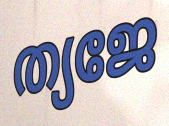
ത്യജേ